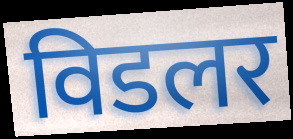
विडलर